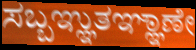
ಸಬ್ಬಞ್ಞುತಞ್ಞಾಣೇ